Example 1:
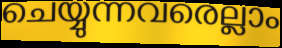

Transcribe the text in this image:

ചെയ്യുന്നവരെല്ലാം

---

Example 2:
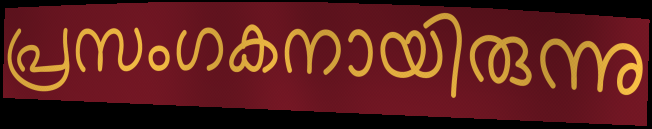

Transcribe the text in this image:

പ്രസംഗകനായിരുന്നു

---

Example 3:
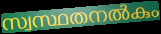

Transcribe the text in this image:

സ്വസ്ഥതനൽകും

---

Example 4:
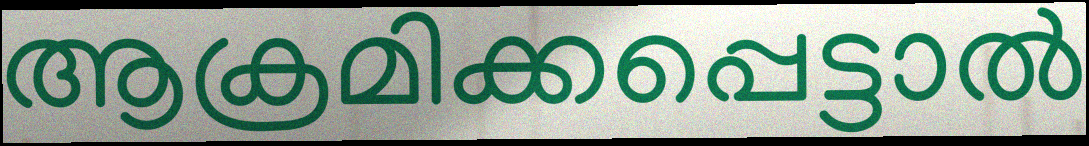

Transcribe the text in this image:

ആക്രമിക്കപ്പെട്ടാൽ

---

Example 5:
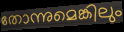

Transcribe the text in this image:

തോന്നുമെങ്കിലും